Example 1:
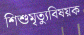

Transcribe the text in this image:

শিশুমৃত্যুবিষয়ক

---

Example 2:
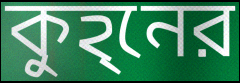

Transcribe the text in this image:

কুহ্‌নের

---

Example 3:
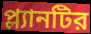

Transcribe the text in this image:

প্ল্যানটির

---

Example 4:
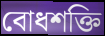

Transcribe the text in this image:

বোধশক্তি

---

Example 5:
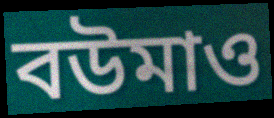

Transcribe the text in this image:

বউমাও